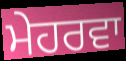
ਮੇਹਰਵਾ